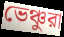
ভেঞ্চুরা